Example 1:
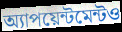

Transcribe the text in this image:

অ্যাপয়েন্টমেন্টও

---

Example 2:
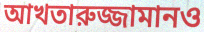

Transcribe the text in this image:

আখতারুজ্জামানও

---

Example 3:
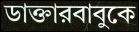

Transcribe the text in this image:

ডাক্তারবাবুকে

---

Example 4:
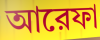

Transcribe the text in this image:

আরেফা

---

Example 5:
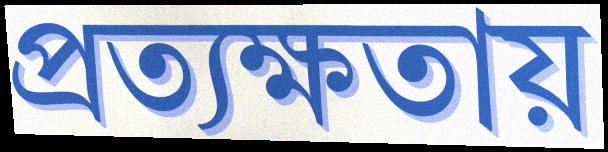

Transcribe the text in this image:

প্রত্যক্ষতায়